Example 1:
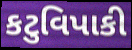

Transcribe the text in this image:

કટુવિપાકી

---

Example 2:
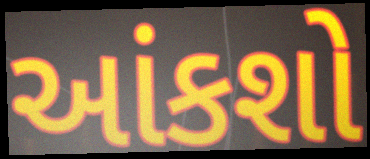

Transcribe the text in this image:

આંકશો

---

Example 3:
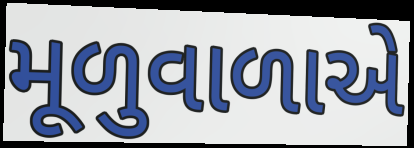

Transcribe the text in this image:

મૂળુવાળાએ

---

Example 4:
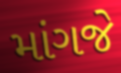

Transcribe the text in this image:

માંગજે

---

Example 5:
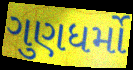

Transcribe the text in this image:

ગુણધર્મો